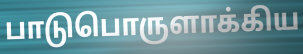
பாடுபொருளாக்கிய